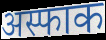
अस्फाक